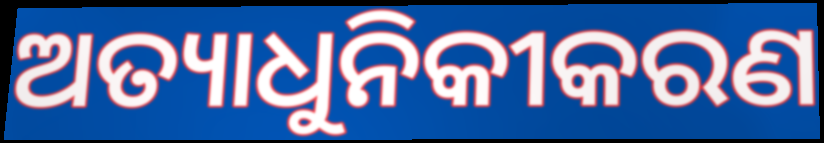
ଅତ୍ୟାଧୁନିକୀକରଣ